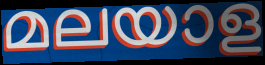
മലയാള